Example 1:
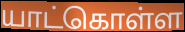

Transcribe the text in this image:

யாட்கொள்ள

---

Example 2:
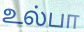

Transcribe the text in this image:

உல்பா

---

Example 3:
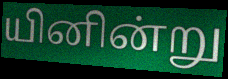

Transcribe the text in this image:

யினின்று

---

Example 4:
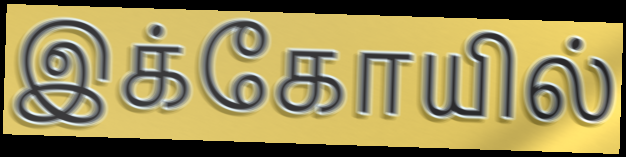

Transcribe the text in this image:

இக்கோயில்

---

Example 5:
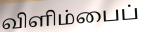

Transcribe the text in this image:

விளிம்பைப்